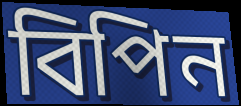
বিপিন